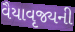
વૈયાવૃજ્યની